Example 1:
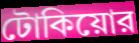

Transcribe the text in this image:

টোকিয়োর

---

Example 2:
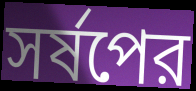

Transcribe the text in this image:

সর্ষপের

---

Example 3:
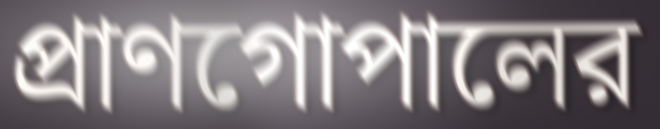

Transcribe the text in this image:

প্রাণগোপালের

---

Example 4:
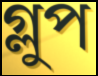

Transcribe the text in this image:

গ্লুপ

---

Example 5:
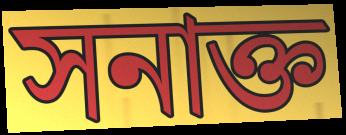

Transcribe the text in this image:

সনাক্ত